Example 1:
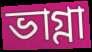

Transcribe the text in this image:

ভাগ্না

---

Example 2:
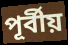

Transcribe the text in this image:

পূর্বীয়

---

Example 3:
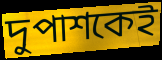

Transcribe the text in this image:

দুপাশকেই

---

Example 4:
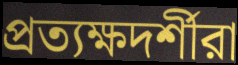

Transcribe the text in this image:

প্রত্যক্ষদর্শীরা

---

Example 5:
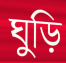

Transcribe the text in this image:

ঘুড়ি